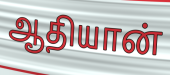
ஆதியான்